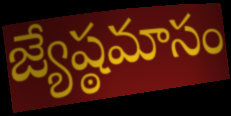
జ్యేష్ఠమాసం